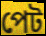
পেট